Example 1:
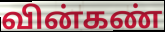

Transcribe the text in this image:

வின்கண்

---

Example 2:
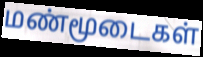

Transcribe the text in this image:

மண்மூடைகள்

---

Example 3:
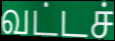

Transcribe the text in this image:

வட்டச்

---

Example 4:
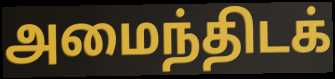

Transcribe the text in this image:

அமைந்திடக்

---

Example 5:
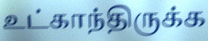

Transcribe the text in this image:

உட்காந்திருக்க